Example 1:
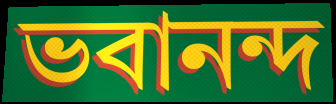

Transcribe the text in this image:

ভবানন্দ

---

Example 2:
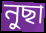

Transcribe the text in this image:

নুছা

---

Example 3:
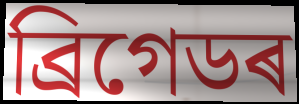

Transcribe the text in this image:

ব্ৰিগেডৰ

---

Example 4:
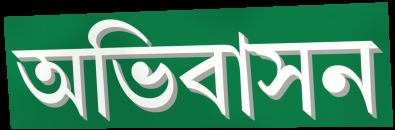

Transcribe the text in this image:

অভিবাসন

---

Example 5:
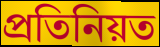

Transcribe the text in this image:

প্ৰতিনিয়ত